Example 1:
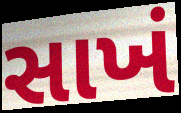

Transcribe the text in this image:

સાખં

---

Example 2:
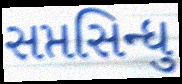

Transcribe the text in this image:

સપ્તસિન્ધુ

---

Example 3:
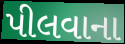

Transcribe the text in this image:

પીલવાના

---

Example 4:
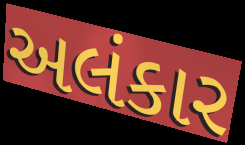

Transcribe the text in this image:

અલંકાર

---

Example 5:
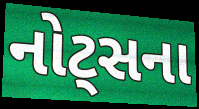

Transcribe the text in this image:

નોટ્સના